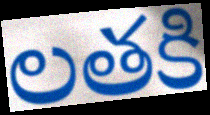
లతకి